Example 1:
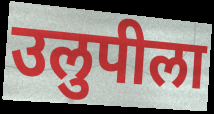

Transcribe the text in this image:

उलुपीला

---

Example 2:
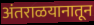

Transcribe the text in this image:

अंतराळयानातून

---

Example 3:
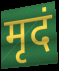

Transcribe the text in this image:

मृदं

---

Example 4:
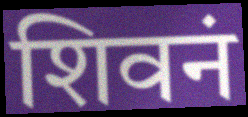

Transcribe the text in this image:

शिवनं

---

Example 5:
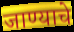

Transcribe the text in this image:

जाण्याचे